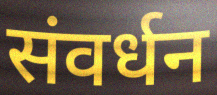
संवर्धन